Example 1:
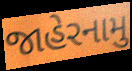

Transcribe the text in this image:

જાહેરનામુ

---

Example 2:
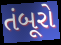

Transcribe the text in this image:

તંબૂરો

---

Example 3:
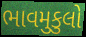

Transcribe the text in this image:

ભાવમુકુલો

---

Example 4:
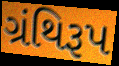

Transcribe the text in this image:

ગ્રંથિરૂપ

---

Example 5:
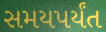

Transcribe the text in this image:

સમયપર્યંત